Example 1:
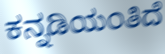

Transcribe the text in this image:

ಕನ್ನಡಿಯಂತಿದೆ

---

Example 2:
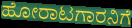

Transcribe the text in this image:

ಹೋರಾಟಗಾರನಿಗೆ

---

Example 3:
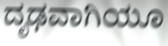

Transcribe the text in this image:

ದೃಢವಾಗಿಯೂ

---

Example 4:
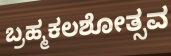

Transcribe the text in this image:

ಬ್ರಹ್ಮಕಲಶೋತ್ಸವ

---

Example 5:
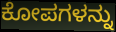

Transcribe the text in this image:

ಕೋಪಗಳನ್ನು